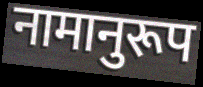
नामानुरूप